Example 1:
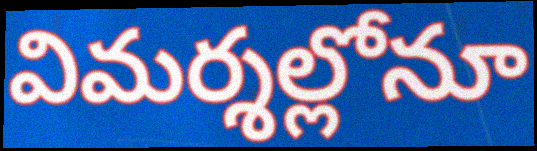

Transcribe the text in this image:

విమర్శల్లోనూ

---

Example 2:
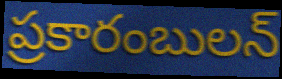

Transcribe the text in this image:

ప్రకారంబులన్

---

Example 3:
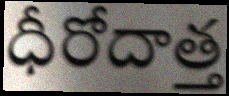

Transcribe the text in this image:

ధీరోదాత్త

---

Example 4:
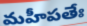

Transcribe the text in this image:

మహీపతేః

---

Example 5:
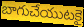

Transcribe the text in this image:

బాగుచేయుటకై